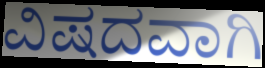
ವಿಷದವಾಗಿ